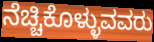
ನೆಚ್ಚಿಕೊಳ್ಳುವವರು